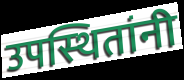
उपस्थितांनी